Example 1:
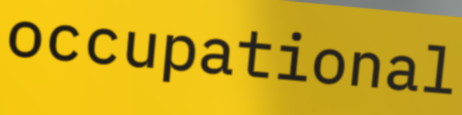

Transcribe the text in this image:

occupational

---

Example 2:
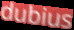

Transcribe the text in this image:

dubius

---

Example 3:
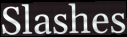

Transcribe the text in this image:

Slashes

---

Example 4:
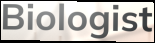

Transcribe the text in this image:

Biologist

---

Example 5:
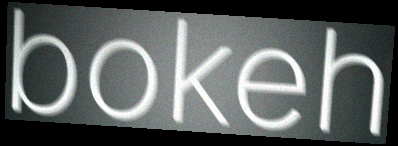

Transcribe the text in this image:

bokeh